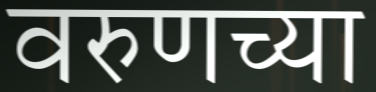
वरुणच्या